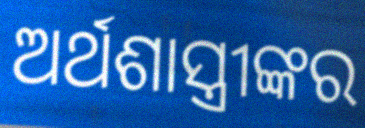
ଅର୍ଥଶାସ୍ତ୍ରୀଙ୍କର